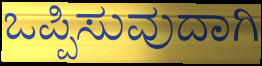
ಒಪ್ಪಿಸುವುದಾಗಿ